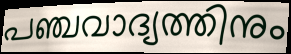
പഞ്ചവാദ്യത്തിനും